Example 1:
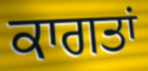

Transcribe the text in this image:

ਕਾਗਤਾਂ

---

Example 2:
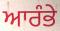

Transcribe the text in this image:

ਆਰੰਭੇ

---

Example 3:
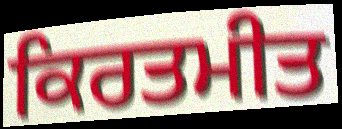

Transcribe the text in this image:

ਕਿਰਤਮੀਤ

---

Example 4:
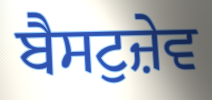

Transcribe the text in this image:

ਬੈਸਟੁਜ਼ੇਵ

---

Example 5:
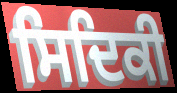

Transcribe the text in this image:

ਸਿਦਿਕੀ